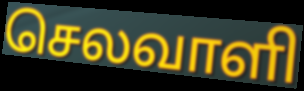
செலவாளி